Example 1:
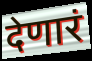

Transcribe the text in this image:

देणारं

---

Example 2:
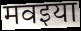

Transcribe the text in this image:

मवइया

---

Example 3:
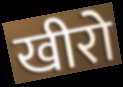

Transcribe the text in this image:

खीरो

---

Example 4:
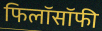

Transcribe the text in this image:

फिलॉसॉफी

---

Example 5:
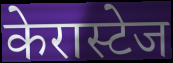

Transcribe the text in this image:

केरास्टेज